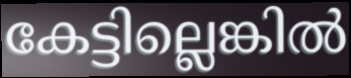
കേട്ടില്ലെങ്കിൽ